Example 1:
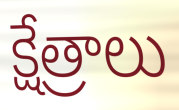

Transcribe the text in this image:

క్షేత్రాలు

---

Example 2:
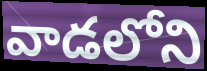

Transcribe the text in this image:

వాడలోని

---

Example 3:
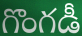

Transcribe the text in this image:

గొంగడీ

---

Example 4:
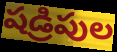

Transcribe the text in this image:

షడ్రిపుల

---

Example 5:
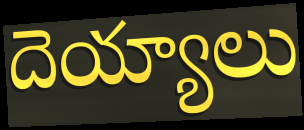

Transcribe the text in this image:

దెయ్యాలు